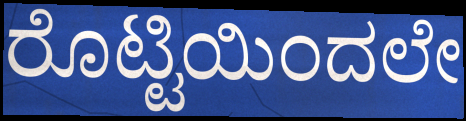
ರೊಟ್ಟಿಯಿಂದಲೇ